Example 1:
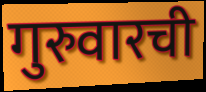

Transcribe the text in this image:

गुरुवारची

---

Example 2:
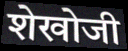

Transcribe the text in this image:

शेखोजी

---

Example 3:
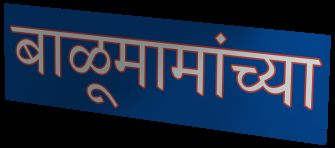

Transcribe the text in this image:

बाळूमामांच्या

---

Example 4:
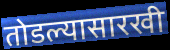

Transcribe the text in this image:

तोडल्यासारखी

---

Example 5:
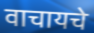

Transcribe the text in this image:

वाचायचे